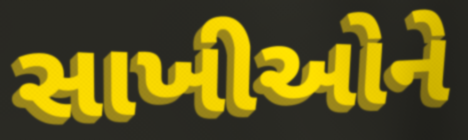
સાખીઓને